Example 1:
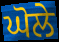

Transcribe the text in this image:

ਘੋਲੇ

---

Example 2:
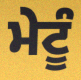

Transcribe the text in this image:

ਮੇਟੂੰ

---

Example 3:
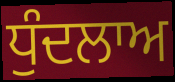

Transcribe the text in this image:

ਧੁੰਦਲਾਅ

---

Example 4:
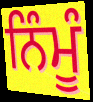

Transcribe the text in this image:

ਨਿੰਮੂੰ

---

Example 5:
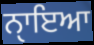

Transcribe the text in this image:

ਨੑਾਇਆ